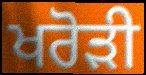
ਖਰੋੜੀ